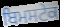
ਬਿਮਸਟੇਕ